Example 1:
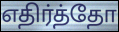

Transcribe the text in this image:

எதிர்த்தோ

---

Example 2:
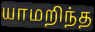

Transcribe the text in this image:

யாமறிந்த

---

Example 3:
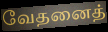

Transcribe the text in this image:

வேதனைத்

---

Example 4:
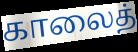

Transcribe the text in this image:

காலைத்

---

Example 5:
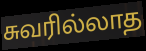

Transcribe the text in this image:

சுவரில்லாத